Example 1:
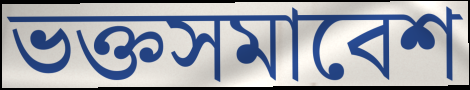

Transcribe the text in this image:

ভক্তসমাবেশ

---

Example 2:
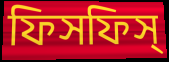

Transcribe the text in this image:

ফিসফিস্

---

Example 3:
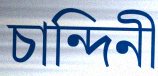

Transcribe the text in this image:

চান্দিনী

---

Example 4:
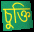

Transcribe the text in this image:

চুক্তি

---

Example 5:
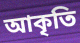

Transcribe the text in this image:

আকৃতি